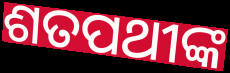
ଶତପଥୀଙ୍କ